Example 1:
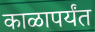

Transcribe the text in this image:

काळापर्यंत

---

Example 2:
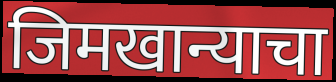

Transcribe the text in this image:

जिमखान्याचा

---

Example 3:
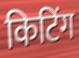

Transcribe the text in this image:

किटिंग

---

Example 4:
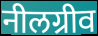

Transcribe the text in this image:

नीलग्रीव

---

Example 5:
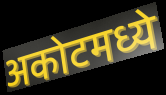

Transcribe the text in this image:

अकोटमध्ये